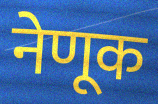
नेणूक